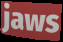
jaws